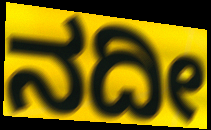
ನದೀ